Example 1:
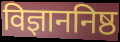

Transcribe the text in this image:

विज्ञाननिष्ठ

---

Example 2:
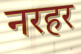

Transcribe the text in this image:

नरहर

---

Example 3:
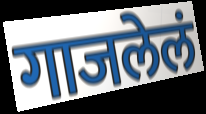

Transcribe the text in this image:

गाजलेलं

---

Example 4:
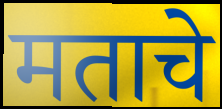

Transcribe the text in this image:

मताचे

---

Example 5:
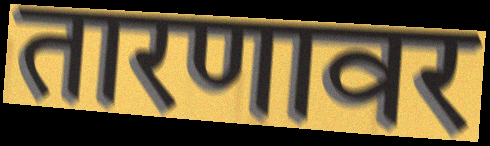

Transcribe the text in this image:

तारणावर